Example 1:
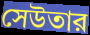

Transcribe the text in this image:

সেউতার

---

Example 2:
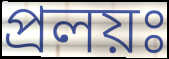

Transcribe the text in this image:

প্রলয়ঃ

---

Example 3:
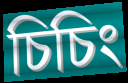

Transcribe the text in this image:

চিচিং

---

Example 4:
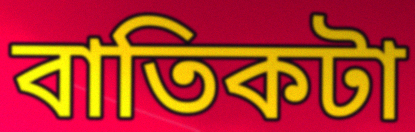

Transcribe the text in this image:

বাতিকটা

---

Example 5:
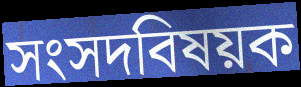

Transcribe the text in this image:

সংসদবিষয়ক